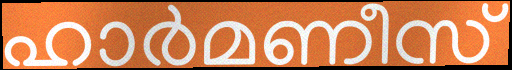
ഹാർമണീസ്